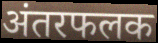
अंतरफलक